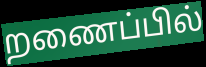
றணைப்பில்